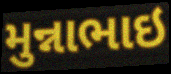
મુન્નાભાઇ